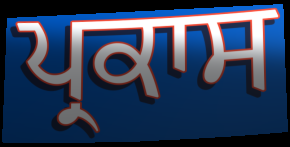
ਪ੍ਰਕਾਸ